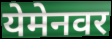
येमेनवर